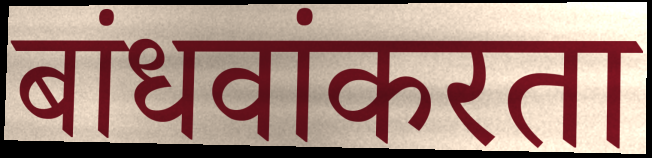
बांधवांकरता